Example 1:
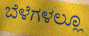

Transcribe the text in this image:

ಬೆಳೆಗಳಲ್ಲೂ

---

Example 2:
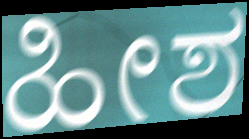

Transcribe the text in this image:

ಹೀಶ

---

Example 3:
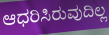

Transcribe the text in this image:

ಆಧರಿಸಿರುವುದಿಲ್ಲ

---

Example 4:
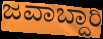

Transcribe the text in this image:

ಜವಾಬ್ದಾರಿ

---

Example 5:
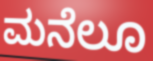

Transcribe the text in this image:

ಮನೆಲೂ